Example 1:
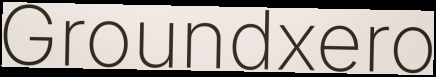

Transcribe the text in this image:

Groundxero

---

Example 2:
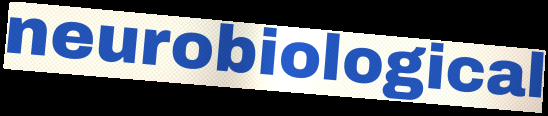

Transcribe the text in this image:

neurobiological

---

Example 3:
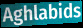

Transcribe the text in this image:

Aghlabids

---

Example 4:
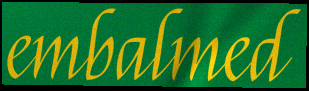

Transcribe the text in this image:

embalmed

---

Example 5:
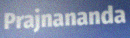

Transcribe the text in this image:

Prajnananda